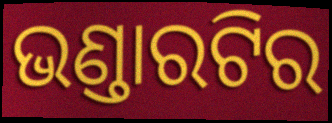
ଭଣ୍ଡାରଟିର